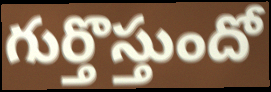
గుర్తొస్తుందో